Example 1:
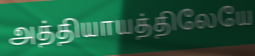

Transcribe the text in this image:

அத்தியாயத்திலேயே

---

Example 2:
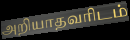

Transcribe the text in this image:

அறியாதவரிடம்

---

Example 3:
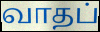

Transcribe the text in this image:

வாதப்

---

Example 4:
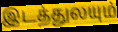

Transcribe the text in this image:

இடத்துலயும்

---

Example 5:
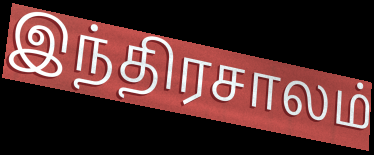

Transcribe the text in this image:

இந்திரசாலம்